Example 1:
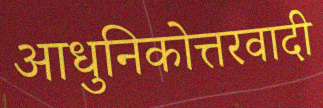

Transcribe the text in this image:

आधुनिकोत्तरवादी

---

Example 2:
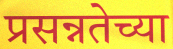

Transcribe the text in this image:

प्रसन्नतेच्या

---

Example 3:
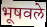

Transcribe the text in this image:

भूषवले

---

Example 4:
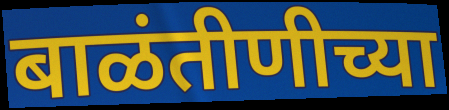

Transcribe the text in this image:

बाळंतीणीच्या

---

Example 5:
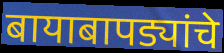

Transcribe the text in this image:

बायाबापड्यांचे